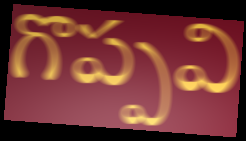
గొప్పవి